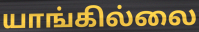
யாங்கில்லை